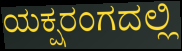
ಯಕ್ಷರಂಗದಲ್ಲಿ